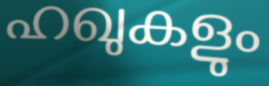
ഹഖുകളും